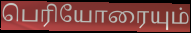
பெரியோரையும்